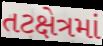
તટક્ષેત્રમાં